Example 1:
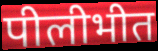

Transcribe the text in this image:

पीलीभीत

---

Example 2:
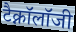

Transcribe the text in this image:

टैक्नॉलॉजी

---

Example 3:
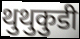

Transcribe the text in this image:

थुथुकुडी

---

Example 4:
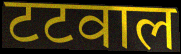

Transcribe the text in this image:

टटवाल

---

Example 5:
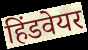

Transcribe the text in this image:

हिंडवेयर